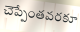
చెప్పేంతవరకూ